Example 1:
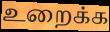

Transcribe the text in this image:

உறைக்க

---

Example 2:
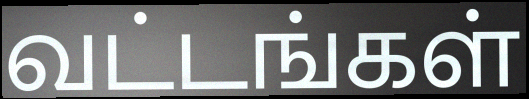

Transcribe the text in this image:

வட்டங்கள்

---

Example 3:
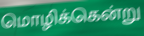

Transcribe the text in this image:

மொழிக்கென்று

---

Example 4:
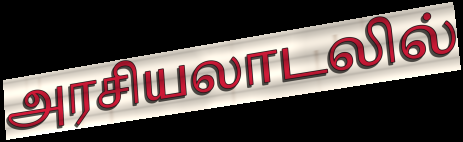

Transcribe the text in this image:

அரசியலாடலில்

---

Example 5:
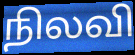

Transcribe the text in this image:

நிலவி